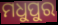
ମଧୁପୁର